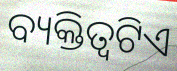
ବ୍ୟକ୍ତିତ୍ବଟିଏ